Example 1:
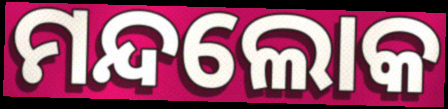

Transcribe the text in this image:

ମନ୍ଦଲୋକ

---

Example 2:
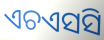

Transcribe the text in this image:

ଏଚଏସସି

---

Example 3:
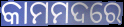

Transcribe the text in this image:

କାମମଦରେ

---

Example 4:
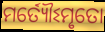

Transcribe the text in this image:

ମର୍ତ୍ୟୌଽମୃତୋ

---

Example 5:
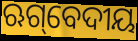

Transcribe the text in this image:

ଋଗ୍‌ବେଦୀୟ